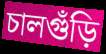
চালগুঁড়ি